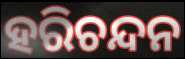
ହରିଚନ୍ଦନ